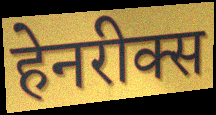
हेनरीक्स